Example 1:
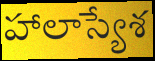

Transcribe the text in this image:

హాలాస్యేశ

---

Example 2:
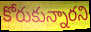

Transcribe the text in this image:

కోరుకున్నారని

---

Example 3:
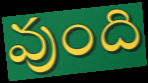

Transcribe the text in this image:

వుంది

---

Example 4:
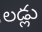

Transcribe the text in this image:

లడ్లు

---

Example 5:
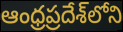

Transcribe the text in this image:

ఆంధ్రప్రదేశ్‌లోని